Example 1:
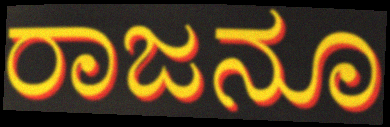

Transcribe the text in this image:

ರಾಜನೂ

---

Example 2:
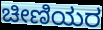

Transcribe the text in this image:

ಚೀಣಿಯರ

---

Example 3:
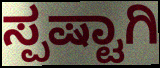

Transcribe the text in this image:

ಸ್ಪಷ್ಟಾಗಿ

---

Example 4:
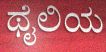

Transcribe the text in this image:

ಥೈಲಿಯ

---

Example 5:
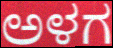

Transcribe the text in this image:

ಅಳಗ